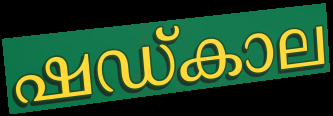
ഷഡ്കാല